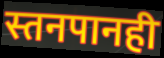
स्तनपानही